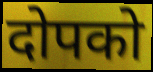
दोपको